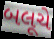
બલૂચે